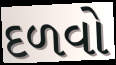
દળવો